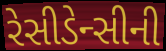
રેસીડેન્સીની